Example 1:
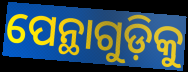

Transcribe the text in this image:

ପେନ୍ଥାଗୁଡ଼ିକୁ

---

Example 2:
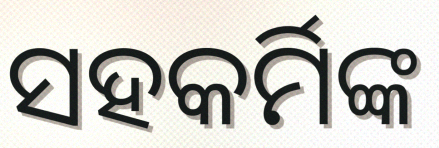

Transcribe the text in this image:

ସହକର୍ମିଙ୍କ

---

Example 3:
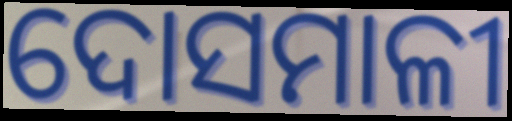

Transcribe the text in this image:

ଦୋସମାଳୀ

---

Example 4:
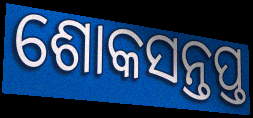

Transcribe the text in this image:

ଶୋକସନ୍ତପ୍ତ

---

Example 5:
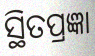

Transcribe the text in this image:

ସ୍ଥିତପ୍ରଜ୍ଞା